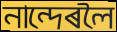
নান্দেৰলৈ